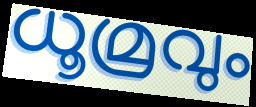
ധൂമ്രവും